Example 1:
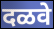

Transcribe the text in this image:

दळवे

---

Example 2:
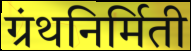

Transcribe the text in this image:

ग्रंथनिर्मिती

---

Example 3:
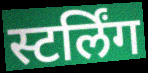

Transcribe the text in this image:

स्टर्लिंग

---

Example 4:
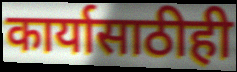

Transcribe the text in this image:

कार्यासाठीही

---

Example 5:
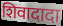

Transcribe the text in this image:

शिवादादा